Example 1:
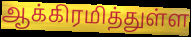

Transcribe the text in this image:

ஆக்கிரமித்துள்ள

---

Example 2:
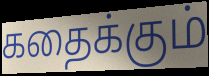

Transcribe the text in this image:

கதைக்கும்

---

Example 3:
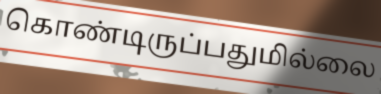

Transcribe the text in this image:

கொண்டிருப்பதுமில்லை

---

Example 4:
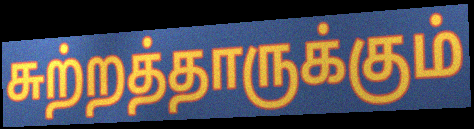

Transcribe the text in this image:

சுற்றத்தாருக்கும்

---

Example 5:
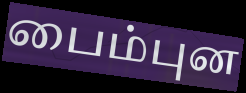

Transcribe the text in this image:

பைம்புன